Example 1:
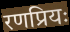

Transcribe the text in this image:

रणप्रियः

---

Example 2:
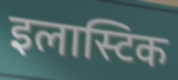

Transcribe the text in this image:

इलास्टिक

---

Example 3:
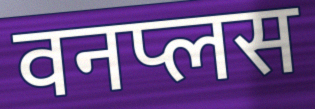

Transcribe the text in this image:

वनप्लस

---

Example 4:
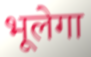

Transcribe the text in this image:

भूलेगा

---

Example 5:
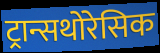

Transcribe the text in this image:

ट्रान्सथोरेसिक